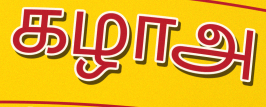
கழாஅ